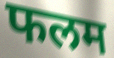
फलम